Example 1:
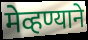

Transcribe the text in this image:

मेव्हण्याने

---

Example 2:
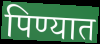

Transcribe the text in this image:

पिण्यात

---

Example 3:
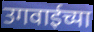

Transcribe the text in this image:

उगवाईच्या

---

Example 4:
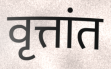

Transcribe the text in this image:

वृत्तांत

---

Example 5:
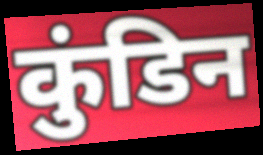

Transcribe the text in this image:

कुंडिन